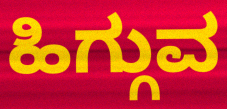
ಹಿಗ್ಗುವ